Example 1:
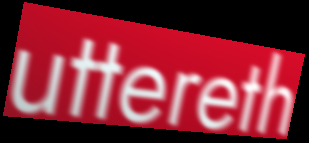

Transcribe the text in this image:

uttereth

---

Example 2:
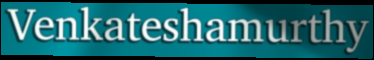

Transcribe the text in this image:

Venkateshamurthy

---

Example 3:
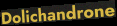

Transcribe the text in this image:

Dolichandrone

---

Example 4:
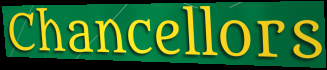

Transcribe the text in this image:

Chancellors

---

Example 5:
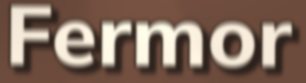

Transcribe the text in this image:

Fermor